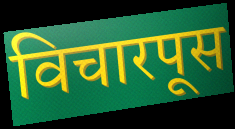
विचारपूस